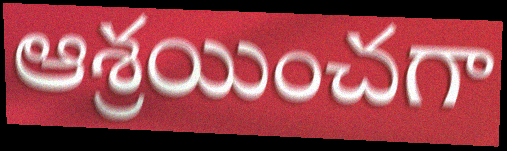
ఆశ్రయించగా